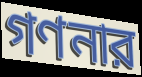
গণনার